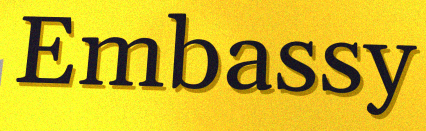
Embassy